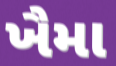
ખૈમા